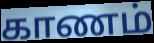
காணம்